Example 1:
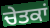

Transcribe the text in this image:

ਚੇਤਕਾਂ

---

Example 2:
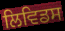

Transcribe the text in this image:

ਲਿਵਿਡਸ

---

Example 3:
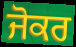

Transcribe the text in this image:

ਜੋਕਰ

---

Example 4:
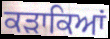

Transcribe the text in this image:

ਕੜਾਕਿਆਂ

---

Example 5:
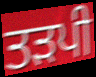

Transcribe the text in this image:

ਤੜਪੀ